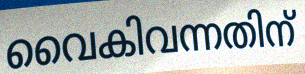
വൈകിവന്നതിന്